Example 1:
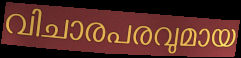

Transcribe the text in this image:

വിചാരപരവുമായ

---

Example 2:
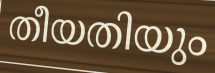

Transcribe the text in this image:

തീയതിയും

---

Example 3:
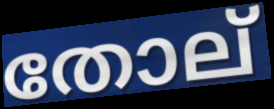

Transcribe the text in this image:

തോല്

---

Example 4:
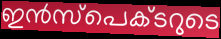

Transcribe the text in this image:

ഇൻസ്പെക്ടറുടെ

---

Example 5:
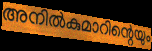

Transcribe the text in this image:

അനിൽകുമാറിന്റെയും